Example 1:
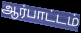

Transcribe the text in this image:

ஆர்பாட்டம்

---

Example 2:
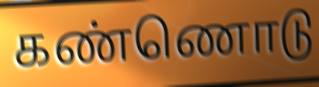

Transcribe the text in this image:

கண்ணொடு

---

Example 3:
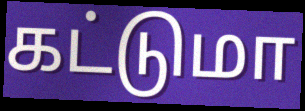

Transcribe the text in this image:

கட்டுமா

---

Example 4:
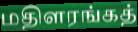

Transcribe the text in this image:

மதிளரங்கத்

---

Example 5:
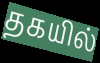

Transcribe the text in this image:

தகயில்